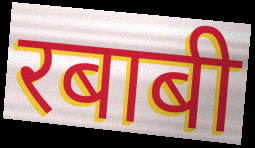
रबाबी